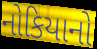
નોકિયાનો